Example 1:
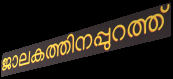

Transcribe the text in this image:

ജാലകത്തിനപ്പുറത്ത്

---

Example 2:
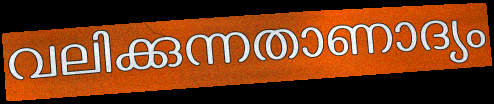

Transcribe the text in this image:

വലിക്കുന്നതാണാദ്യം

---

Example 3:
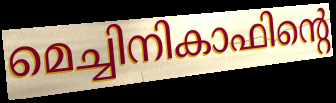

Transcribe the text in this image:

മെച്ചിനികാഫിന്റെ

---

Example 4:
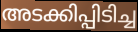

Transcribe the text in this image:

അടക്കിപ്പിടിച്ച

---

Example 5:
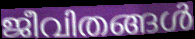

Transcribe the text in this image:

ജീവിതങ്ങൾ